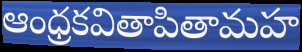
ఆంధ్రకవితాపితామహ